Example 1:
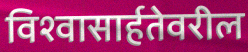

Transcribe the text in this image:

विश्वासार्हतेवरील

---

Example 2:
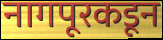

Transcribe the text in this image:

नागपूरकडून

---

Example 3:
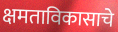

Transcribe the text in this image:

क्षमताविकासाचे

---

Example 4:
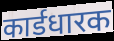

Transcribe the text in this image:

कार्डधारक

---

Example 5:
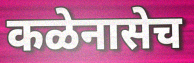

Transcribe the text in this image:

कळेनासेच